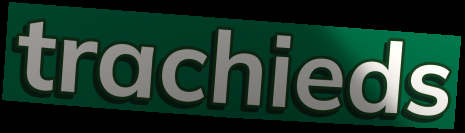
trachieds